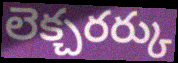
లెక్చరర్కు